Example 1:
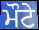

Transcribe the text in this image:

ਮੌਟੇ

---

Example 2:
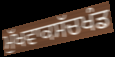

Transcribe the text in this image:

ਮੁੱਖਵਾਕਸੱਚਖੰਡ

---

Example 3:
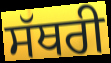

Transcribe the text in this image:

ਸੱਥਰੀ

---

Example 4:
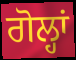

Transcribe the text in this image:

ਗੋਲ੍ਹਾਂ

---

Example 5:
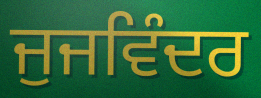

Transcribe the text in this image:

ਜੁਜਵਿੰਦਰ